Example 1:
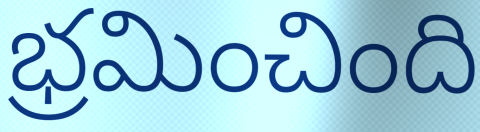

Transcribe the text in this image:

భ్రమించింది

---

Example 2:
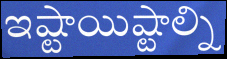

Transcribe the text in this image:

ఇష్టాయిష్టాల్ని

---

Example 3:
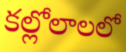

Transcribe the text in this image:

కల్లోలాలలో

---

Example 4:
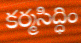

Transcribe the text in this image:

కర్మసిద్ధిం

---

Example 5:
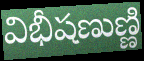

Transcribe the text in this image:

విభీషణుణ్ణి